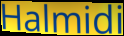
Halmidi